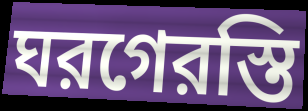
ঘরগেরস্তি